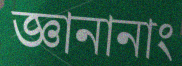
জ্ঞানানাং